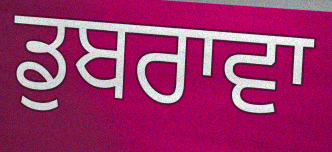
ਡੁਬਰਾਵਾ